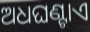
ଅଧଘଣ୍ଟାଏ